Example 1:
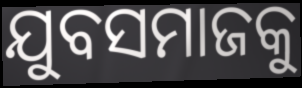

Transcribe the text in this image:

ଯୁବସମାଜକୁ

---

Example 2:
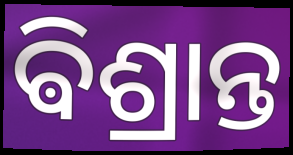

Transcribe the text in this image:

ଵିଶ୍ରାନ୍ତ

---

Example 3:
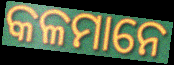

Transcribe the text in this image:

କଳମାନେ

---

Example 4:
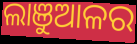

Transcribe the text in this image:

ଲାଞୁଆଳର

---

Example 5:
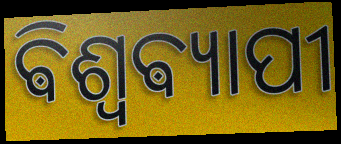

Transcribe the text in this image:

ଵିଶ୍ଵଵ୍ୟାପୀ